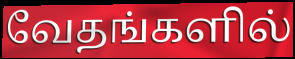
வேதங்களில்